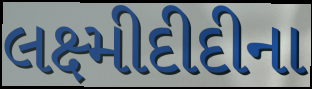
લક્ષ્મીદીદીના